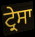
ਟ੍ਰੇਸਾ